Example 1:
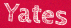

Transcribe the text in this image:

Yates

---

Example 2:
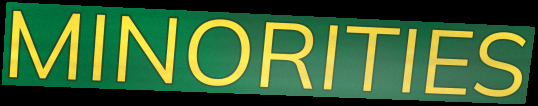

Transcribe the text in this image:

MINORITIES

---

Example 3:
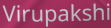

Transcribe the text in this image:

Virupakshi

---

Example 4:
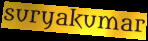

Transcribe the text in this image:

suryakumar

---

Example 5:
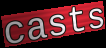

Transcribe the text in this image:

casts